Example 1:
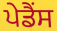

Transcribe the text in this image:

ਪੇਡੈਂਸ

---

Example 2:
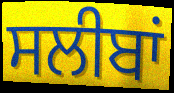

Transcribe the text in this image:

ਸਲੀਬਾਂ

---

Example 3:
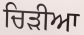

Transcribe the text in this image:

ਚਿੜੀਆ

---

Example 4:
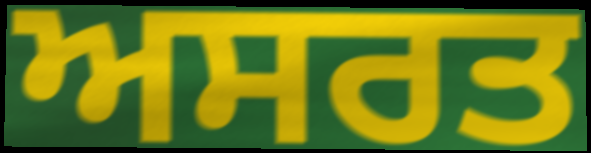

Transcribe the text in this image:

ਅਸਰਤ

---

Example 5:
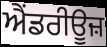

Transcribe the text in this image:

ਐਂਡਰੀਊਜ਼